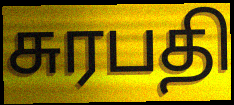
சுரபதி